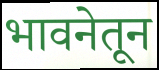
भावनेतून